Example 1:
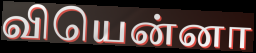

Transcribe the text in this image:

வியென்னா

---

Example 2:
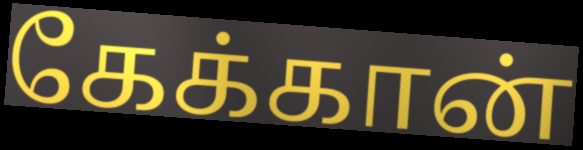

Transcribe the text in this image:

கேக்கான்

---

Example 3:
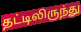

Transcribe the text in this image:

தட்டிலிருந்து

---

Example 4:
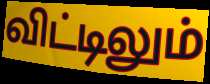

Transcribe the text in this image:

விட்டிலும்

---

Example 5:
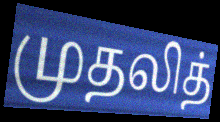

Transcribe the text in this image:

முதலித்